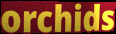
orchids